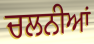
ਚਲਨੀਆਂ